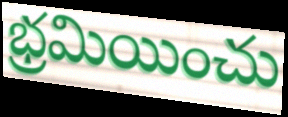
భ్రమియించు